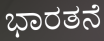
ಭಾರತನೆ